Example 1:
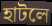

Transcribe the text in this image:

হাটলে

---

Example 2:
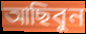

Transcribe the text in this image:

আছিবুন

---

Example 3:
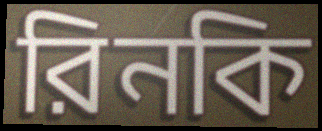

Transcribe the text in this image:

রিনকি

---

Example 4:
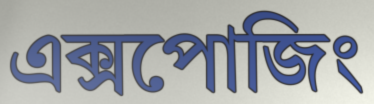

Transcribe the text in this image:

এক্সপোজিং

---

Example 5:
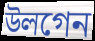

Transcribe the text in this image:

উলগেন